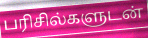
பரிசில்களுடன்